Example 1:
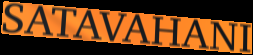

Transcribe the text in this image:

SATAVAHANI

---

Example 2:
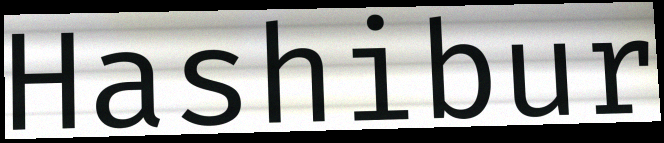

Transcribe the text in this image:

Hashibur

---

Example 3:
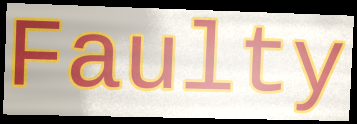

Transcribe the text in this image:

Faulty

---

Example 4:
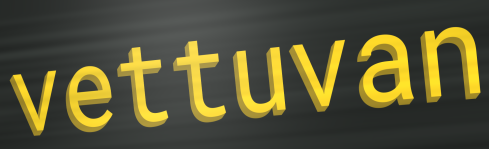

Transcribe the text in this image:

vettuvan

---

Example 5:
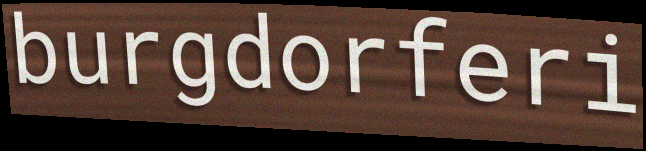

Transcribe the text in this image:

burgdorferi